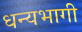
धन्यभागी